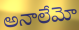
అనాలేమో